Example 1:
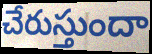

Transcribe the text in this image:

చేరుస్తుందా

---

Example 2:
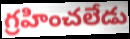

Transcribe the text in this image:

గ్రహించలేడు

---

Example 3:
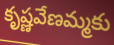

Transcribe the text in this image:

కృష్ణవేణమ్మకు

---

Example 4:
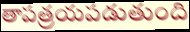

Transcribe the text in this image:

తాపత్రయపడుతుంది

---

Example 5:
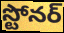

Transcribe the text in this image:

స్టోనర్